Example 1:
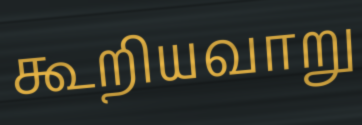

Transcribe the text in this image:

கூறியவாறு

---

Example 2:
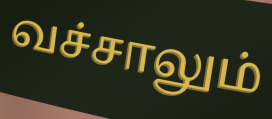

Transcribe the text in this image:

வச்சாலும்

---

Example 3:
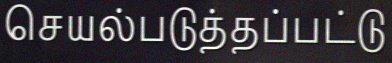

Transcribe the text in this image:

செயல்படுத்தப்பட்டு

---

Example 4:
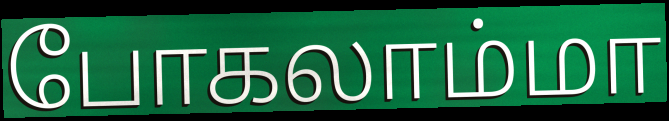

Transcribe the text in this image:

போகலாம்மா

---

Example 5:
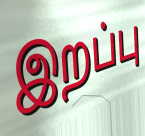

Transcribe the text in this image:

இறப்பு